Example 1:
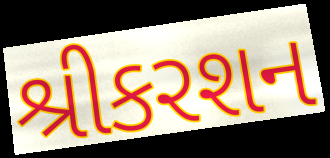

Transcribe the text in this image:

શ્રીકરશન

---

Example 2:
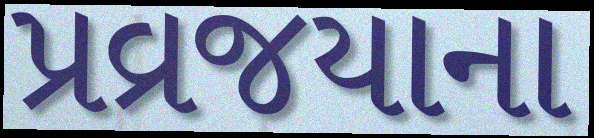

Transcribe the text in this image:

પ્રવ્રજયાના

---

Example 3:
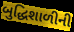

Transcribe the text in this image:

બુદ્ધિશાળીની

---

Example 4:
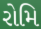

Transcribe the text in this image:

રોમિ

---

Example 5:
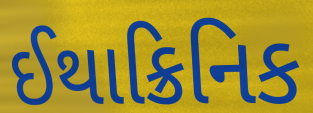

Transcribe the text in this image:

ઈથાક્રિનિક